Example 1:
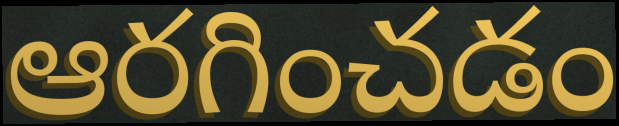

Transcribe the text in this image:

ఆరగించడం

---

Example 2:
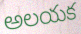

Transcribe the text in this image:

అలయక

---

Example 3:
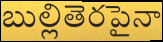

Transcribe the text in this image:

బుల్లితెరపైనా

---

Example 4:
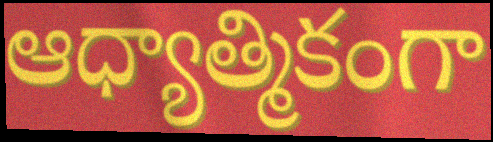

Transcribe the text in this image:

ఆధ్యాత్మికంగా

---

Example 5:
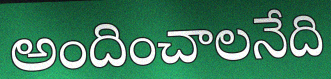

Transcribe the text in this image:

అందించాలనేది